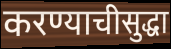
करण्याचीसुद्धा